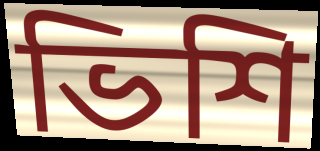
ভিশি